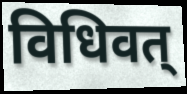
विधिवत्